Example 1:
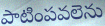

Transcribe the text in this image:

పాటింపవలెను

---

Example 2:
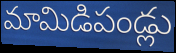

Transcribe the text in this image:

మామిడిపండ్లు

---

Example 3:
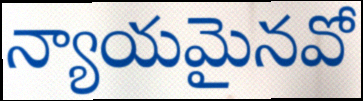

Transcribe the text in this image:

న్యాయమైనవో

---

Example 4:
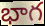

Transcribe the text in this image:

భాగ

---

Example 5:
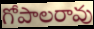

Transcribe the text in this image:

గోపాలరావు